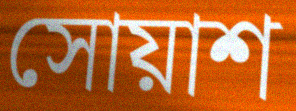
সোয়াশ